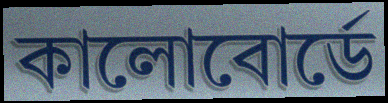
কালোবোর্ডে